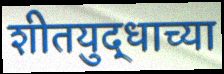
शीतयुद्धाच्या